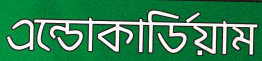
এন্ডোকার্ডিয়াম